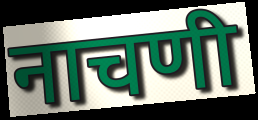
नाचणी